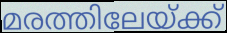
മരത്തിലേയ്ക്ക്